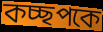
কচ্ছপকে